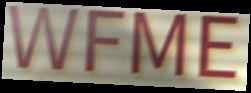
WFME